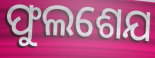
ଫୁଲଶେଯ